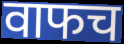
वाफच